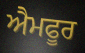
ਐਮਫੂਰ